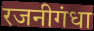
रजनीगंधा